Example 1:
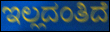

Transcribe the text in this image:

ಇಲ್ಲದಂತಿದೆ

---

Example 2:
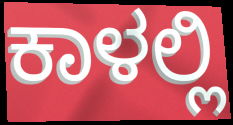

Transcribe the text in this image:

ಕಾಳಲ್ಲಿ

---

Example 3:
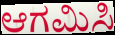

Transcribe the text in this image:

ಆಗಮಿಸಿ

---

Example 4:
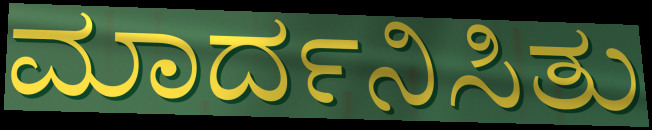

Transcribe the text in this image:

ಮಾರ್ದನಿಸಿತು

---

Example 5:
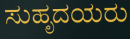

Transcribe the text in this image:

ಸುಹೃದಯರು